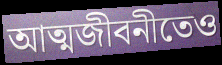
আত্মজীবনীতেও